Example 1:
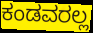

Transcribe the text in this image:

ಕಂಡವರಲ್ಲ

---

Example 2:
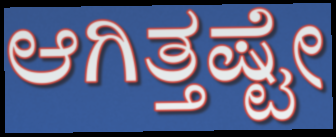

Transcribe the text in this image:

ಆಗಿತ್ತಷ್ಟೇ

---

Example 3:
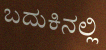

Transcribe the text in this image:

ಬದುಕಿನಲ್ಲಿ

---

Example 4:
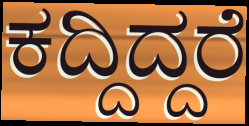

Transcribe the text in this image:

ಕದ್ದಿದ್ದರೆ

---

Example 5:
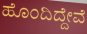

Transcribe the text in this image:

ಹೊಂದಿದ್ದೇವೆ